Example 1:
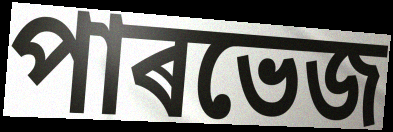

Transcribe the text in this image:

পাৰভেজ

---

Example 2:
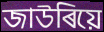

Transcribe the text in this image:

জাউৰিয়ে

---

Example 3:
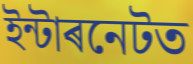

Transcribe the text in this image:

ইন্টাৰনেটত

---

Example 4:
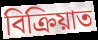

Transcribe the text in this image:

বিক্ৰিয়াত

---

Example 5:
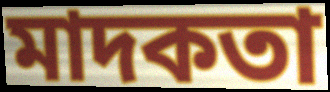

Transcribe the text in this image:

মাদকতা